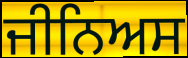
ਜੀਨਿਅਸ